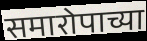
समारोपाच्या